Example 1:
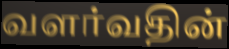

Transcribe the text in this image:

வளர்வதின்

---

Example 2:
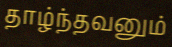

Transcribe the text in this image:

தாழ்ந்தவனும்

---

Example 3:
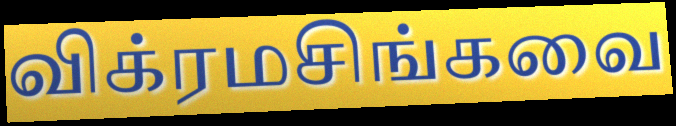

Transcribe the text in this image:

விக்ரமசிங்கவை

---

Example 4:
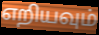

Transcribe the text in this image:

எறியவும்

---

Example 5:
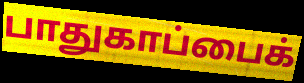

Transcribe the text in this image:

பாதுகாப்பைக்